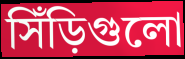
সিঁড়িগুলো